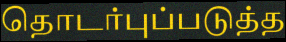
தொடர்புப்படுத்த